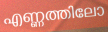
എണ്ണത്തിലോ